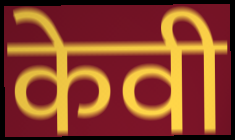
केवी